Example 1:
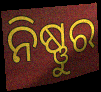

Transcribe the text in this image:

ନିଷ୍ଣୁର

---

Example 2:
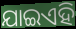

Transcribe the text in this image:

ଯାଇଏହି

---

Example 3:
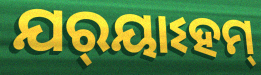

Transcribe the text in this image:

ଯର୍‌ୟାଽହମ୍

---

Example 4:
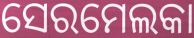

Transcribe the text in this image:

ସେରମେଲକା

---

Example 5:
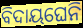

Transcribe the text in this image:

ବିଦାୟଘେନି